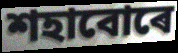
শহাবোৰে